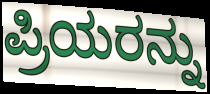
ಪ್ರಿಯರನ್ನು